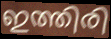
ഇത്തിരി